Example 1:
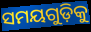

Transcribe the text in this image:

ସମୟଗୁଡ଼ିକୁ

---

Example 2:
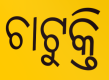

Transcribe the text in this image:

ଚାଟୁକ୍ତି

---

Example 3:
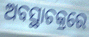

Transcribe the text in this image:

ଅବସ୍ଥାଚକ୍ରରେ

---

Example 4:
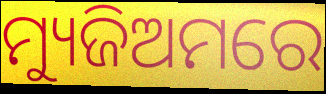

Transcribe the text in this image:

ମ୍ୟୁଜିଅମରେ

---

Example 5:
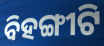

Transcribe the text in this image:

ବିହଙ୍ଗୀଟି